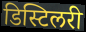
डिस्टिलरी